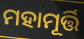
ମହାମୂର୍ତ୍ତି